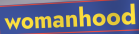
womanhood